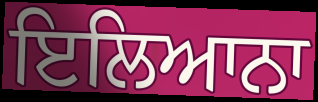
ਇਲਿਆਨਾ